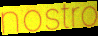
nostro